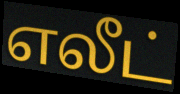
எலீட்